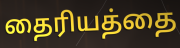
தைரியத்தை